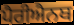
ਪੈਰੀਐਨਥ